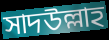
সাদউল্লাহ